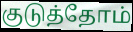
குடுத்தோம்